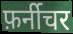
फ़र्नीचर